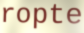
ropte